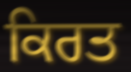
ਕਿਰਤ